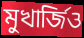
মুখার্জিও